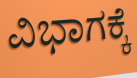
ವಿಭಾಗಕ್ಕೆ